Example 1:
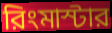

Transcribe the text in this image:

রিংমাস্টার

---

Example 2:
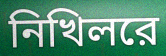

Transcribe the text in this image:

নিখিলরে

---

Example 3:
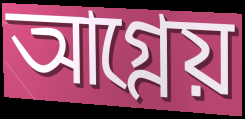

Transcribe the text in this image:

আগ্নেয়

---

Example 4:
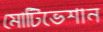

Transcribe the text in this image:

মোটিভেশান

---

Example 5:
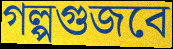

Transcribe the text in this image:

গল্পগুজবে